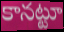
కానట్టూ